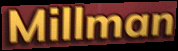
Millman